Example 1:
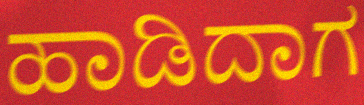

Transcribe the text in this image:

ಹಾಡಿದಾಗ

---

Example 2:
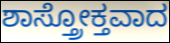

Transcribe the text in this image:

ಶಾಸ್ತ್ರೋಕ್ತವಾದ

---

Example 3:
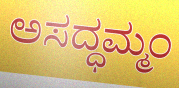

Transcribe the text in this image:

ಅಸದ್ಧಮ್ಮಂ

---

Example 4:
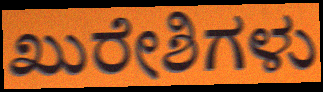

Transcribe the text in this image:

ಖುರೇಶಿಗಳು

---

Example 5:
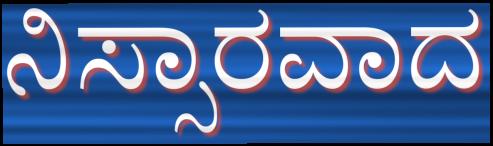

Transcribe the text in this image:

ನಿಸ್ಸಾರವಾದ